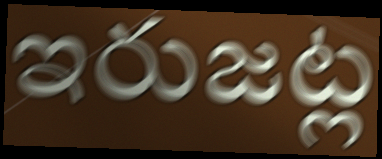
ఇరుజట్ల